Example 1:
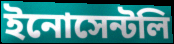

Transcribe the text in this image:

ইনোসেন্টলি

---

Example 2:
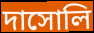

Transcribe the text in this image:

দাসোলি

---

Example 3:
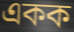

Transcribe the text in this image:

একক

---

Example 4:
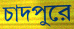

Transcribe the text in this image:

চাদপুরে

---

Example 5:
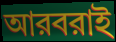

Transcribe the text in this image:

আরবরাই